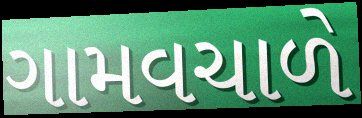
ગામવચાળે